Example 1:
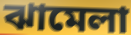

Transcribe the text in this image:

ঝামেলা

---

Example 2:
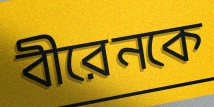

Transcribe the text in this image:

বীরেনকে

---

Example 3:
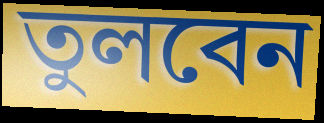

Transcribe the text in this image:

তুলবেন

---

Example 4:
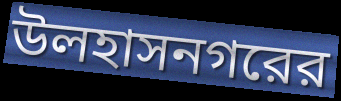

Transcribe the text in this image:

উলহাসনগরের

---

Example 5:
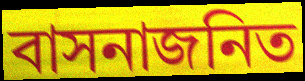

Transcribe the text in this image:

বাসনাজনিত